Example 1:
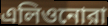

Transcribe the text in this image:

এলিওনোরা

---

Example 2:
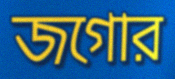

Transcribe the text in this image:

জগোর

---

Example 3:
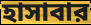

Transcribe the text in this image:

হাসাবার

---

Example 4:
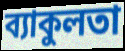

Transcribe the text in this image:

ব্যাকুলতা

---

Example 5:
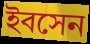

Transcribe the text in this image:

ইবসেন